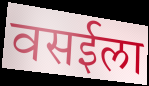
वसईला